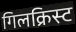
गिलक्रिस्ट